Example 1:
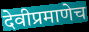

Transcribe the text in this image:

देवीप्रमाणेच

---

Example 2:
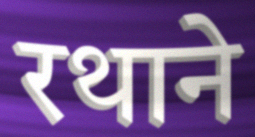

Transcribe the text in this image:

रथाने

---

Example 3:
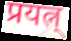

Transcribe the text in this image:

प्रयत्न्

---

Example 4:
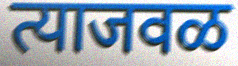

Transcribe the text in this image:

त्याजवळ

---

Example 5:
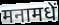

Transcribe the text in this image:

मनामधें